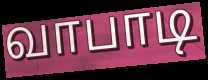
வாபாடி